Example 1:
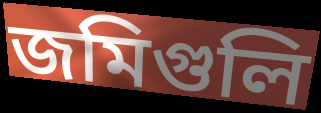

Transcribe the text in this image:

জমিগুলি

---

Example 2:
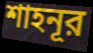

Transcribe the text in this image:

শাহনূর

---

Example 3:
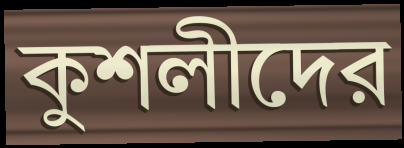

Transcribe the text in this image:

কুশলীদের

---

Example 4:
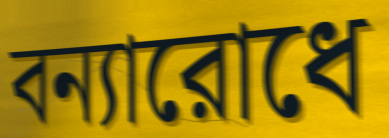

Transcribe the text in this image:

বন্যারোধে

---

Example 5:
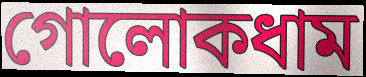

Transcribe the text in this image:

গোলোকধাম